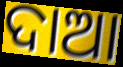
ଦାଆ